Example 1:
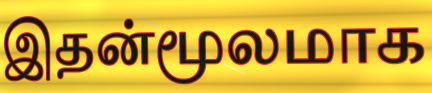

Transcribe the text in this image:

இதன்மூலமாக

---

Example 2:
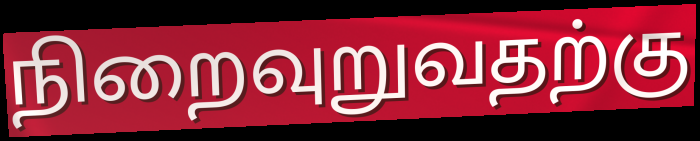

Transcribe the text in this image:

நிறைவுறுவதற்கு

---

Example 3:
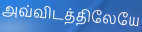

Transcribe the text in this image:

அவ்விடத்திலேயே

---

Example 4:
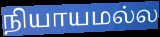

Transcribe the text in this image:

நியாயமல்ல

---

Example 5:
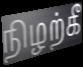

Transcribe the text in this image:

நிழற்கீ